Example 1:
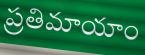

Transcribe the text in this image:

ప్రతిమాయాం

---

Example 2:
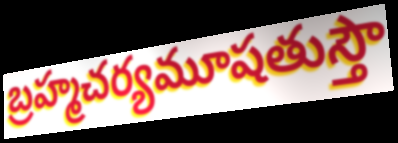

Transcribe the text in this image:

బ్రహ్మచర్యమూషతుస్తౌ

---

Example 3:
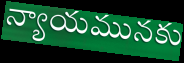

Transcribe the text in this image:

న్యాయమునకు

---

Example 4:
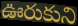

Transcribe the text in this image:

ఊరుకుని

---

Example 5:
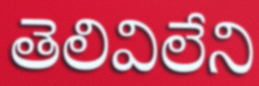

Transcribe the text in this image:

తెలివిలేని